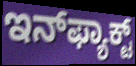
ಇನ್‌ಫ್ಯಾಕ್ಟ್